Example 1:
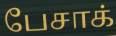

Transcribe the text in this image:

பேசாக்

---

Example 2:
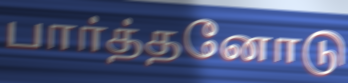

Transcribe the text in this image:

பார்த்தனோடு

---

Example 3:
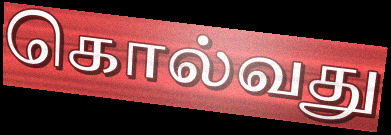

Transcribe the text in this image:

கொல்வது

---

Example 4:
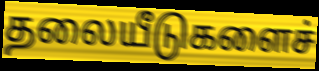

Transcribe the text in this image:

தலையீடுகளைச்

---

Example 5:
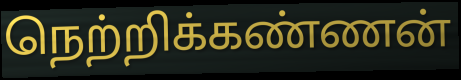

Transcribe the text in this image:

நெற்றிக்கண்ணன்